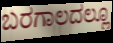
ಬರಗಾಲದಲ್ಲೂ